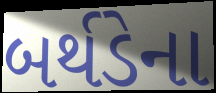
બર્થડેના